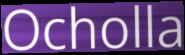
Ocholla